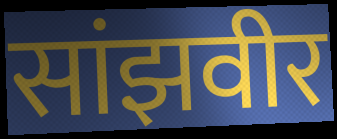
सांझवीर